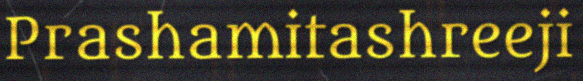
Prashamitashreeji